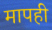
मापही